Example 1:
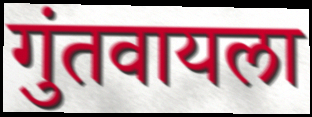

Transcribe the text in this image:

गुंतवायला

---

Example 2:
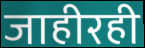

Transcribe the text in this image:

जाहीरही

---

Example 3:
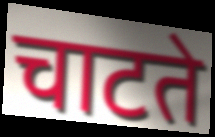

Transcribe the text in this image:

चाटते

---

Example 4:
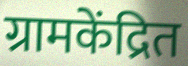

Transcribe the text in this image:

ग्रामकेंद्रित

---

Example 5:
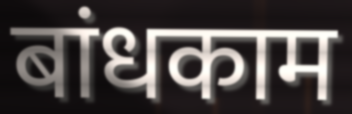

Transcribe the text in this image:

बांधकाम